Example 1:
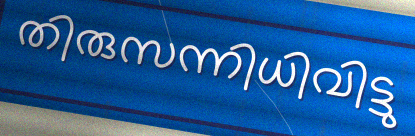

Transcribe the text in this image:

തിരുസന്നിധിവിട്ടു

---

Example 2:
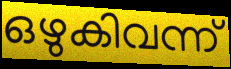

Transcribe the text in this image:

ഒഴുകിവന്ന്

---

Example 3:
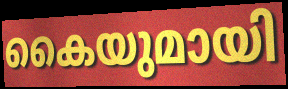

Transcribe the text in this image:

കൈയുമായി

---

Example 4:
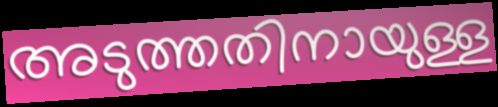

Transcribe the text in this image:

അടുത്തതിനായുള്ള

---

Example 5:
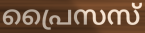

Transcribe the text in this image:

പ്രൈസസ്